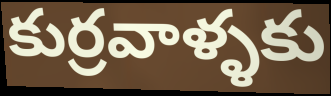
కుర్రవాళ్ళకు